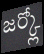
జర్క్లో